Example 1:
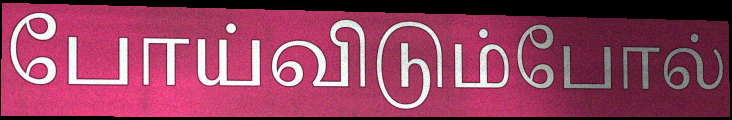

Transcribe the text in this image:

போய்விடும்போல்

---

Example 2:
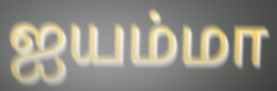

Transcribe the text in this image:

ஐயம்மா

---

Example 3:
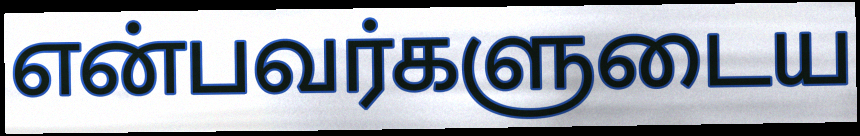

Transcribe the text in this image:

என்பவர்களுடைய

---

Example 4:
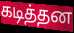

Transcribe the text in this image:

கடித்தன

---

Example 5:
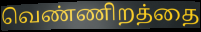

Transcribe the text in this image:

வெண்ணிறத்தை